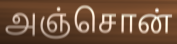
அஞ்சொன்